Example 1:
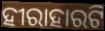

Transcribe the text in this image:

ହୀରାହାରଟି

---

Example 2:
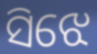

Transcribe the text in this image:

ସିଝେ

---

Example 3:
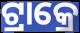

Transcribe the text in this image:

ଟ୍ରାକ୍ରେ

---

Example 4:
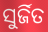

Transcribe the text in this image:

ସୁର୍ଜିତ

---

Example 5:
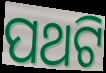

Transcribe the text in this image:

ପଥଟି